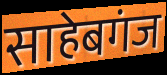
साहेबगंज